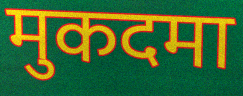
मुकदमा